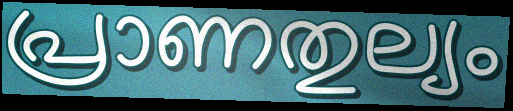
പ്രാണതുല്യം